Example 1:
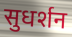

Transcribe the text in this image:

सुधर्शन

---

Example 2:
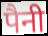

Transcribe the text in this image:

पैनी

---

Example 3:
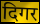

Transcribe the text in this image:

दिगर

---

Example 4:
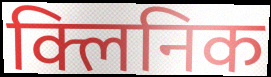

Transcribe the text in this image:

क्लिनिक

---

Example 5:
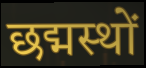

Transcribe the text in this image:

छद्मस्थों